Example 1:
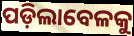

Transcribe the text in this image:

ପଡ଼ିଲାବେଳକୁ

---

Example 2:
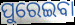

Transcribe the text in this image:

ପୁରେଇବା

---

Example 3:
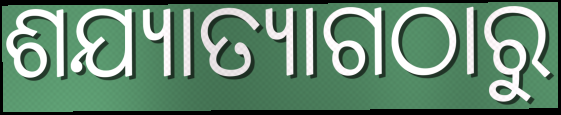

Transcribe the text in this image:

ଶଯ୍ୟାତ୍ୟାଗଠାରୁ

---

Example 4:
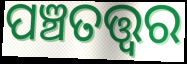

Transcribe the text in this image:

ପଞ୍ଚତତ୍ତ୍ୱର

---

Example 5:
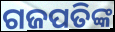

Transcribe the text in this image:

ଗଜପତିଙ୍କ